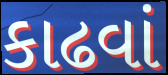
કાઢવાં